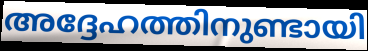
അദ്ദേഹത്തിനുണ്ടായി